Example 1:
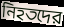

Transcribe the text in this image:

নিহতদের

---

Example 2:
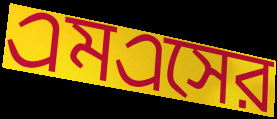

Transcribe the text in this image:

এমএসের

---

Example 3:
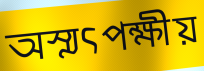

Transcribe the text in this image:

অস্মৎপক্ষীয়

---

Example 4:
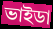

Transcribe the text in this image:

ভাইডা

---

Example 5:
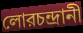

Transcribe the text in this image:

লোরচন্দ্রানী